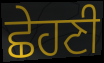
ਛੇਹਣੀ